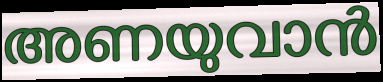
അണയുവാൻ